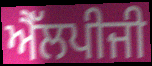
ਐੱਲਪੀਜੀ